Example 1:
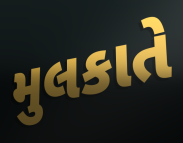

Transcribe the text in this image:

મુલકાતે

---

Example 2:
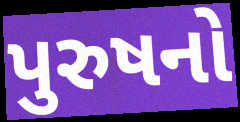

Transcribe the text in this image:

પુરુષનો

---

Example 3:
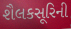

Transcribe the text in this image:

શૈલકસૂરિની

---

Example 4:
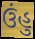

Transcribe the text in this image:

ઉંહુ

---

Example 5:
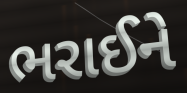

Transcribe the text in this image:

ભરાઈને